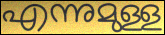
എന്നുമുള്ള